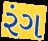
રંગ